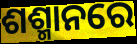
ଶଶ୍ମାନରେ